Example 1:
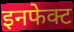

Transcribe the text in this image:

इनफेक्ट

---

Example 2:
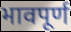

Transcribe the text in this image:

भावपूर्ण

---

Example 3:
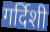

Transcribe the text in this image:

गर्दिशी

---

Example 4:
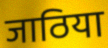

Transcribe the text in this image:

जाठिया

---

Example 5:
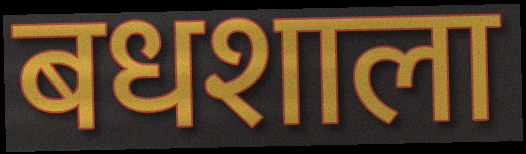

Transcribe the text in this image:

बधशाला